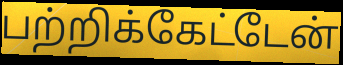
பற்றிக்கேட்டேன்